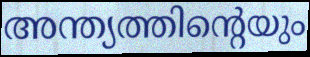
അന്ത്യത്തിന്റെയും